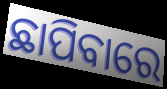
ଛାପିବାରେ